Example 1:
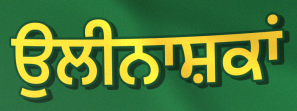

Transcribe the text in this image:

ਉਲੀਨਾਸ਼ਕਾਂ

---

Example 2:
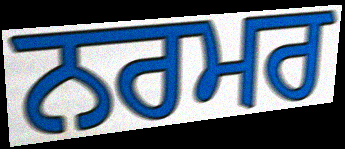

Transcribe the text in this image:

ਨਰਮਰ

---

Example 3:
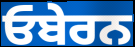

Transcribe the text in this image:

ਓਬੇਰਨ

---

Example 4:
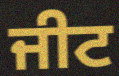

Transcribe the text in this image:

ਜੀਟ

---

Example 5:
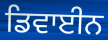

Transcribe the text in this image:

ਡਿਵਾਈਨ